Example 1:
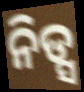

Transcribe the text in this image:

ନିଡ୍ସ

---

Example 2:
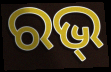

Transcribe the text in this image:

ରଭ୍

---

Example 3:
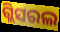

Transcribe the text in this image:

ଗ୍ଲିସରଲ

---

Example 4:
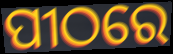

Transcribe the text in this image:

ପୀଠରେ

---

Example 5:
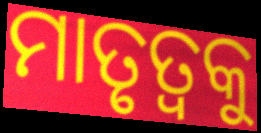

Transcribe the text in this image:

ମାତୃତ୍ବକୁ